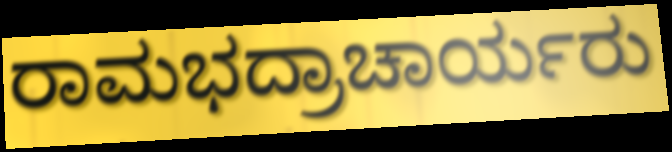
ರಾಮಭದ್ರಾಚಾರ್ಯರು